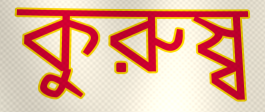
কুরুষ্ব